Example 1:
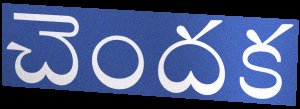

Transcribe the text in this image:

చెందక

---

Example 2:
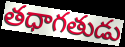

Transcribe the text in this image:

తధాగతుడు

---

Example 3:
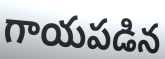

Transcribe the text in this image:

గాయపడిన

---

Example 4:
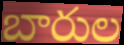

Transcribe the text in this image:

బారుల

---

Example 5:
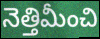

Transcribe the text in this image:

నెత్తిమీంచి